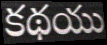
కథయు